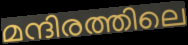
മന്ദിരത്തിലെ